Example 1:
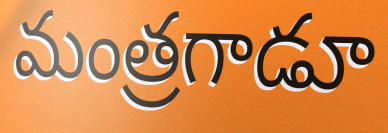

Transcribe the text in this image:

మంత్రగాడూ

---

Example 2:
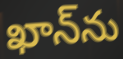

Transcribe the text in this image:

ఖాన్‌ను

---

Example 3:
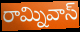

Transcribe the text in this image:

రామ్నివాస్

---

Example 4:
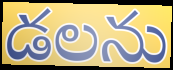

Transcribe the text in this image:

డలను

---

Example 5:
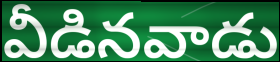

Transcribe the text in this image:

వీడినవాడు